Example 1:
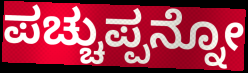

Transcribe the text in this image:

ಪಚ್ಚುಪ್ಪನ್ನೋ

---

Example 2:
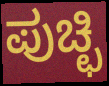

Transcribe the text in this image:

ಪುಚ್ಛಿ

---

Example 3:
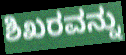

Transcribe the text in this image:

ಶಿಖರವನ್ನು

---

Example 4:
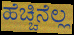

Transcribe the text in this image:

ಹೆಚ್ಚಿನೆಲ್ಲ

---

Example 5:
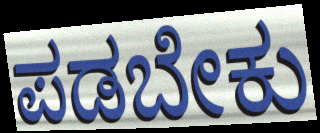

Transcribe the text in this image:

ಪಡಬೇಕು